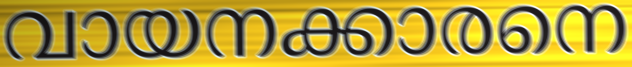
വായനക്കാരനെ